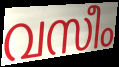
വസീം